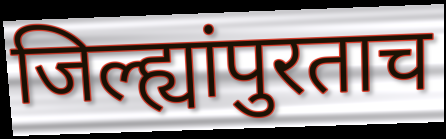
जिल्ह्यांपुरताच